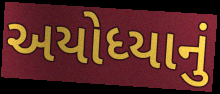
અયોધ્યાનું